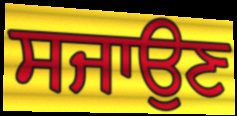
ਸਜਾਉਣ